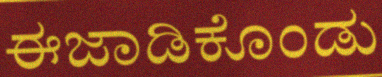
ಈಜಾಡಿಕೊಂಡು